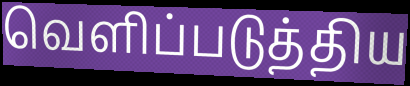
வெளிப்படுத்திய